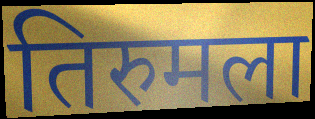
तिरुमला